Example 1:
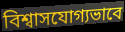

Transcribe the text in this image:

বিশ্বাসযোগ্যভাবে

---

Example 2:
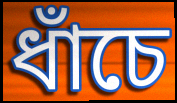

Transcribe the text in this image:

ধাঁচে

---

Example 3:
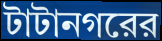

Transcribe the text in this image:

টাটানগরের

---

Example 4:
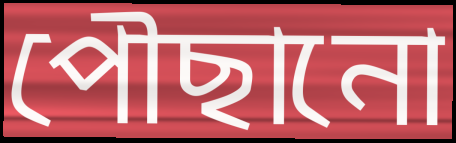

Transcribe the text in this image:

পৌছানো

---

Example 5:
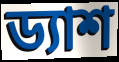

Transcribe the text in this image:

ড্যাশ